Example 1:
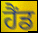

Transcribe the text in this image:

ਹੈਂਡ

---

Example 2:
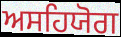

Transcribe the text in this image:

ਅਸਹਿਯੋਗ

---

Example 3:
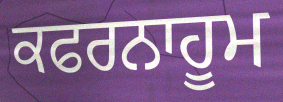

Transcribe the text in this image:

ਕਫਰਨਾਹੂਮ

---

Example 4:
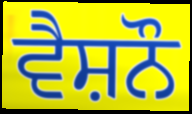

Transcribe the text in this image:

ਵੈਸ਼ਨੌ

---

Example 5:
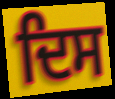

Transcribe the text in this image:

ਦਿਸ